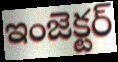
ఇంజెక్టర్